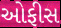
ઓફીસ